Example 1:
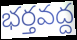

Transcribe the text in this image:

భర్తవద్ద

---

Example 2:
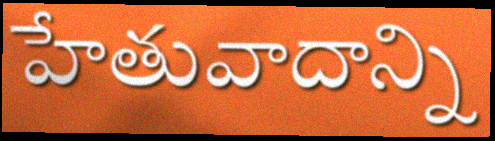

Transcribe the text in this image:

హేతువాదాన్ని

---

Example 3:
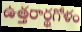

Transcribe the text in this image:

ఉత్తరార్థగోళం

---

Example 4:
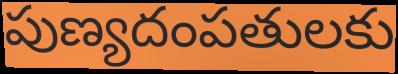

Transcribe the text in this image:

పుణ్యదంపతులకు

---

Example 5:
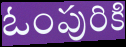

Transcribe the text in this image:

ఓంపురికి